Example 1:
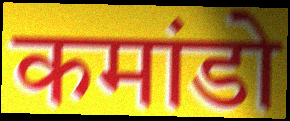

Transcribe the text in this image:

कमांडो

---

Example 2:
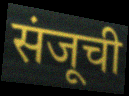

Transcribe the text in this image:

संजूची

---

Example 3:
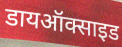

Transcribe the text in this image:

डायऑक्साइड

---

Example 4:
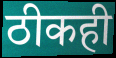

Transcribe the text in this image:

ठीकही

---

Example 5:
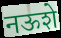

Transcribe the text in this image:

नऊशे